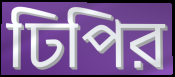
ঢিপির